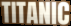
TITANIC